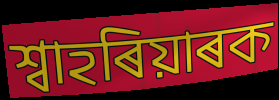
শ্বাহৰিয়াৰক